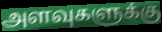
அளவுகளுக்கு